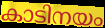
കാടിനയം